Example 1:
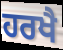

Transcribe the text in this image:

ਹਰਖੈ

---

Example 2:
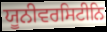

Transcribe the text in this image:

ਯੂਨੀਵਰਸਿਟੀਨਿ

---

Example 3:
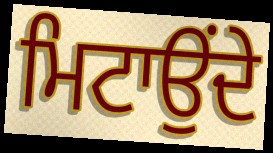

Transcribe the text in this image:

ਮਿਟਾਉਂਦੇ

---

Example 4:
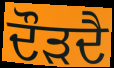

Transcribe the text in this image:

ਦੌੜਦੈ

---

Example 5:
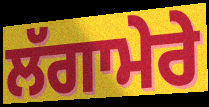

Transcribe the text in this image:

ਲੱਗਾਮੇਰੇ